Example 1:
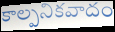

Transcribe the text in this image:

కాల్పనికవాదం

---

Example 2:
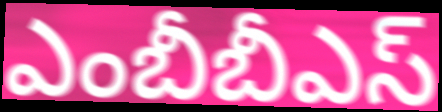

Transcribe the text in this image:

ఎంబీబీఎస్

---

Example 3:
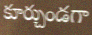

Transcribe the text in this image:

కూర్చుండగా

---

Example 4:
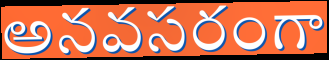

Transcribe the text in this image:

అనవసరంగా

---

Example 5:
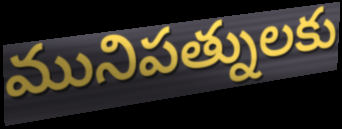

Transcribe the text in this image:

మునిపత్నులకు